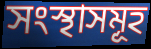
সংস্থাসমূহ